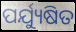
ପର୍ଯ୍ୟୁଷିତ